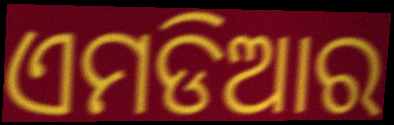
ଏମଡିଆର